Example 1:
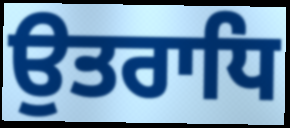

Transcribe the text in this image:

ਉਤਰਾਧਿ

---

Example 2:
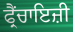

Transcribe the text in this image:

ਫ੍ਰੈਂਚਾਇਜ਼ੀ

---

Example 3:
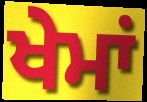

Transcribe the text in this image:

ਖੇਮਾਂ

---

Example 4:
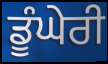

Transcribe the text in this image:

ਡੂੰਘੇਰੀ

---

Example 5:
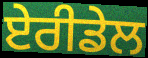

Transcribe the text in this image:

ਏਰੀਡੇਲ